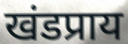
खंडप्राय